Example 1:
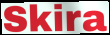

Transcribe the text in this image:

Skira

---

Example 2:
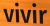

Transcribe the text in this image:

vivir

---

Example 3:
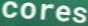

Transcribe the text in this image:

cores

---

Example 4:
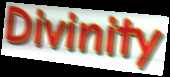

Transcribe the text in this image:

Divinity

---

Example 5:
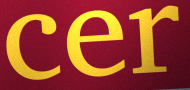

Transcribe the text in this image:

cer